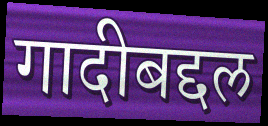
गादीबद्दल